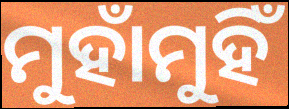
ମୁହାଁମୁହିଁ